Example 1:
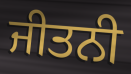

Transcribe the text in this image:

ਜੀਤਨੀ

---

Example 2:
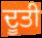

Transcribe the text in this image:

ਦੂਤੀ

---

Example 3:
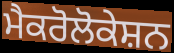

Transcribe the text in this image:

ਮੈਕਰੋਲੋਕੇਸ਼ਨ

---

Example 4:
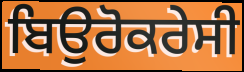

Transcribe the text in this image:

ਬਿਉਰੋਕਰੇਸੀ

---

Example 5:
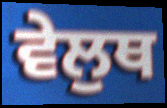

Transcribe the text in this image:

ਵੇਲੁਥ